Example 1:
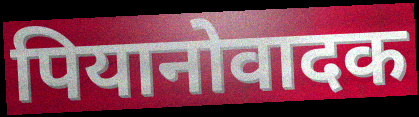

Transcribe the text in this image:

पियानोवादक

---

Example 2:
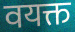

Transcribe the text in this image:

वयक्त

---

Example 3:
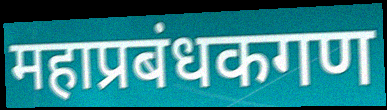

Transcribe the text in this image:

महाप्रबंधकगण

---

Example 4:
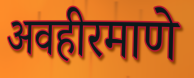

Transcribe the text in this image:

अवहीरमाणे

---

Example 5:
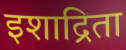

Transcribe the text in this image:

इशाद्रिता